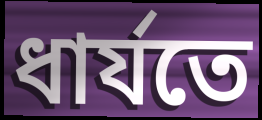
ধার্যতে